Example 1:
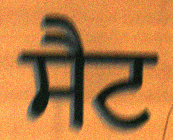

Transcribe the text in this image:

ਸੈਟ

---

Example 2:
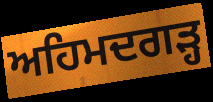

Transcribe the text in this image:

ਅਹਿਮਦਗੜ੍ਹ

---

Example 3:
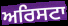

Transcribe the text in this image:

ਅਰਿਸਟਾ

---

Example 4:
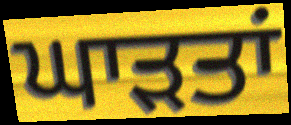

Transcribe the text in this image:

ਘਾਡ਼ਤਾਂ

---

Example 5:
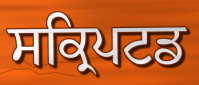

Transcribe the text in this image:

ਸਕ੍ਰਿਪਟਡ